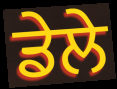
ਡੇਲੇ